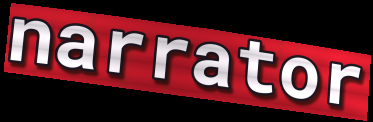
narrator